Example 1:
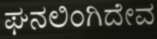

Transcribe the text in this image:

ಘನಲಿಂಗಿದೇವ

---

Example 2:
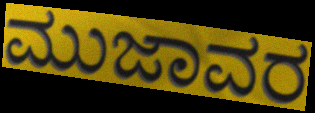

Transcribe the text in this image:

ಮುಜಾವರ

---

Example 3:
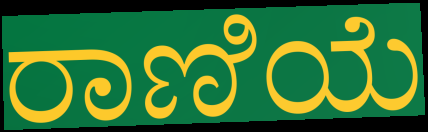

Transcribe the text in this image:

ರಾಣಿಯೆ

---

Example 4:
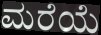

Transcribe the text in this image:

ಮರೆಯೆ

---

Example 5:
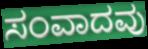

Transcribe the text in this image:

ಸಂವಾದವು